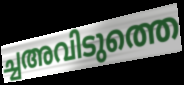
ച്ചഅവിടുത്തെ